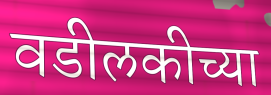
वडीलकीच्या